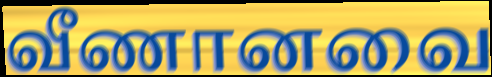
வீணானவை